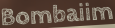
Bombaiim